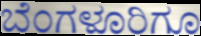
ಬೆಂಗಳೂರಿಗೂ